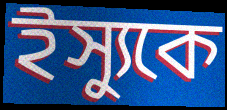
ইস্যুকে